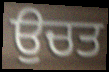
ਉਚਤ